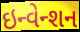
ઇન્વેન્શન